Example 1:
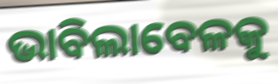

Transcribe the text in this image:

ଭାବିଲାବେଳକୁ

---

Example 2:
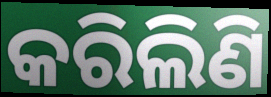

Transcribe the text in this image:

କରିଲିଣି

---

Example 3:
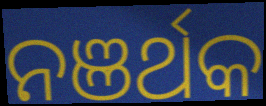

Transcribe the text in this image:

ନଞର୍ଥକ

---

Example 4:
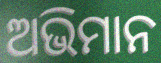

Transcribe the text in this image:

ଅଭିମାନ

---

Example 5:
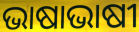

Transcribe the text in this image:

ଭାଷାଭାଷୀ